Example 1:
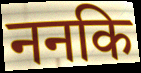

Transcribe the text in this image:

ननकि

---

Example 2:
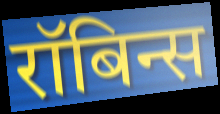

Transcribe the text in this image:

रॉबिन्स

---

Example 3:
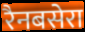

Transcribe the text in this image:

रैनबसेरा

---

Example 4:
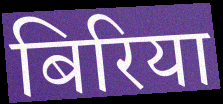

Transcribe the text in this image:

बिरिया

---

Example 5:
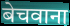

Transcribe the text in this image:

बेचवाना